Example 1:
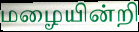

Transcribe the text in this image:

மழையின்றி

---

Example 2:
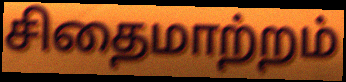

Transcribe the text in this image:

சிதைமாற்றம்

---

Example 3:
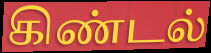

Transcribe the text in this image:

கிண்டல்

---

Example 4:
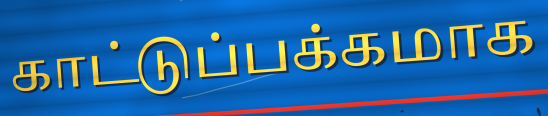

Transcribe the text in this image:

காட்டுப்பக்கமாக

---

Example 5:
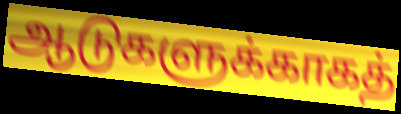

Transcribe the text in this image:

ஆடுகளுக்காகத்